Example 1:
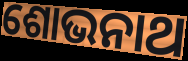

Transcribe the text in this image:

ଶୋଭନାଥ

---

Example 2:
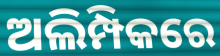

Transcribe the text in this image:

ଅଲିମ୍ପିକରେ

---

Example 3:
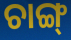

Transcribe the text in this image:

ଚାଙ୍ଗ୍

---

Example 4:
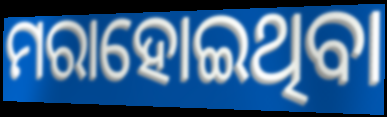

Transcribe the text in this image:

ମରାହୋଇଥିବା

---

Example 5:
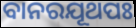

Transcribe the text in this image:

ବାନରଯୂଥପଃ